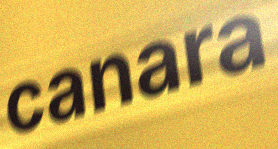
canara